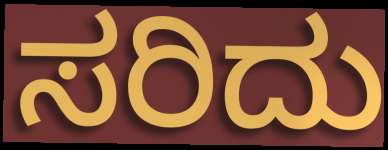
ಸರಿದು